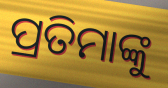
ପ୍ରତିମାଙ୍କୁ